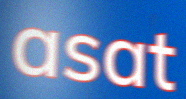
asat